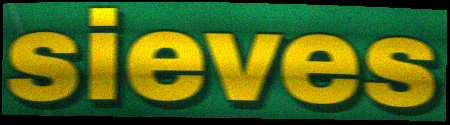
sieves